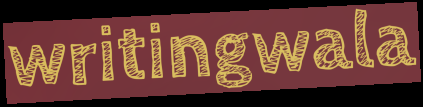
writingwala